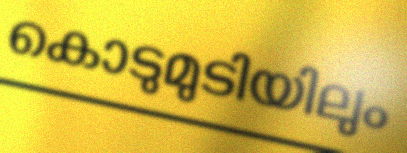
കൊടുമുടിയിലും